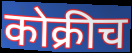
कोक्रीच